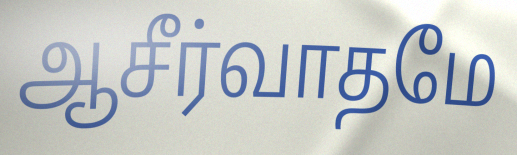
ஆசீர்வாதமே